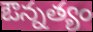
ఔన్నత్యం